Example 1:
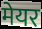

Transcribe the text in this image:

मेयर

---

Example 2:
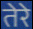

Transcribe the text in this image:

तेरे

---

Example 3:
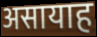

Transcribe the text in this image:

असायाह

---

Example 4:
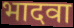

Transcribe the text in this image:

भादवा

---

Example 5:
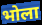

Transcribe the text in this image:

भोला